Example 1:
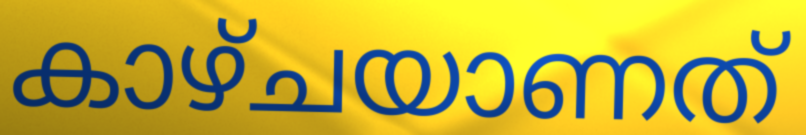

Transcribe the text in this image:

കാഴ്ചയാണത്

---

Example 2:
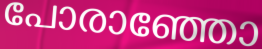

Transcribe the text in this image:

പോരാഞ്ഞോ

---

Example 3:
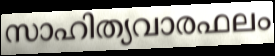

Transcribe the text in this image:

സാഹിത്യവാരഫലം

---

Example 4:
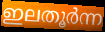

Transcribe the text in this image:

ഇലതൂർന്ന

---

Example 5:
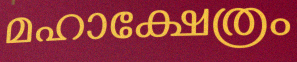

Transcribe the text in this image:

മഹാക്ഷേത്രം